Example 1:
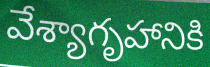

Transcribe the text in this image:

వేశ్యాగృహానికి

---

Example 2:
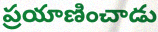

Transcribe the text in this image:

ప్రయాణించాడు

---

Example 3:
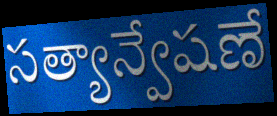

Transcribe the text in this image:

సత్యాన్వేషణే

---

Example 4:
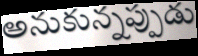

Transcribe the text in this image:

అనుకున్నప్పుడు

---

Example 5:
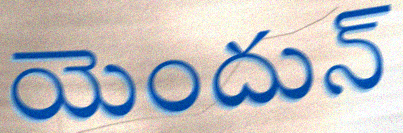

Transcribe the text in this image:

యెందున్